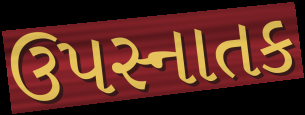
ઉપસ્નાતક